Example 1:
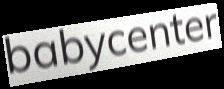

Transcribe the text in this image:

babycenter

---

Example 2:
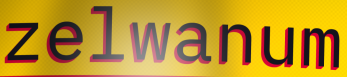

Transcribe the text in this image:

zelwanum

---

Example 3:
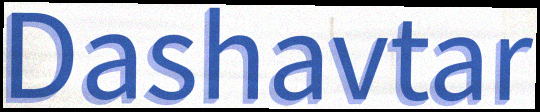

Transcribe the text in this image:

Dashavtar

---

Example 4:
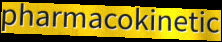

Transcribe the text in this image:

pharmacokinetic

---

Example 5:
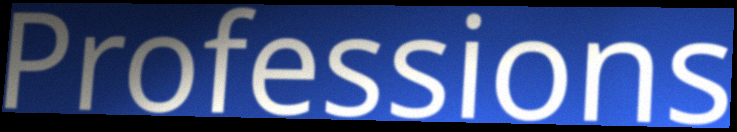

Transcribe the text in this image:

Professions